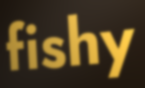
fishy